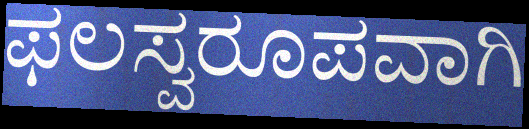
ಫಲಸ್ವರೂಪವಾಗಿ